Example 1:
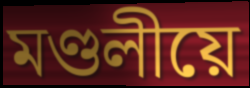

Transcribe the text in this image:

মণ্ডলীয়ে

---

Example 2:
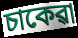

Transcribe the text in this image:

চাকেৱা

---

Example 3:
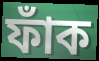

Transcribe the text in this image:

ফাঁক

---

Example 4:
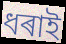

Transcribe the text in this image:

ধৰাই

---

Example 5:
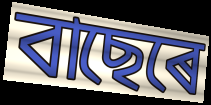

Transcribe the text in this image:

বাছেৰে